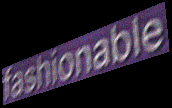
fashionable